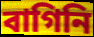
বাগিনি